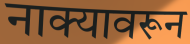
नाक्यावरून